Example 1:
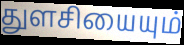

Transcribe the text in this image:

துளசியையும்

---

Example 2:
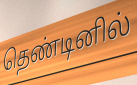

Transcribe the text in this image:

தெண்டினில்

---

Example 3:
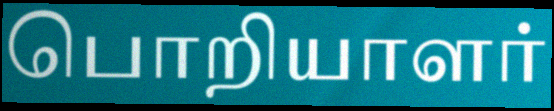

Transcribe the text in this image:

பொறியாளர்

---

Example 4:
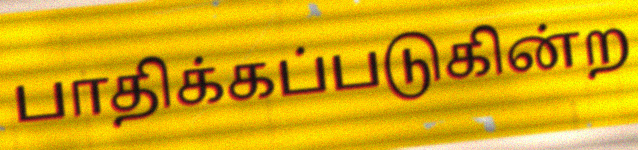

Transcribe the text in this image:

பாதிக்கப்படுகின்ற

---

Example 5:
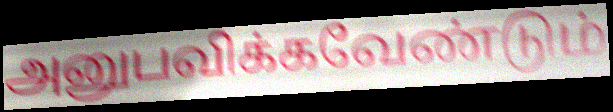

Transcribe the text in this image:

அனுபவிக்கவேண்டும்